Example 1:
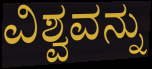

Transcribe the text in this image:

ವಿಶ್ವವನ್ನು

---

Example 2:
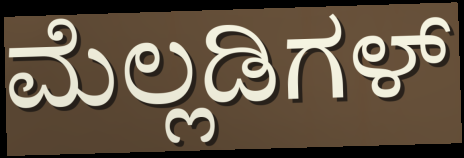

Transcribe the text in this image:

ಮೆಲ್ಲಡಿಗಳ್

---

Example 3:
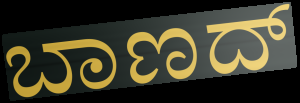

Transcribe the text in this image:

ಬಾಣದ್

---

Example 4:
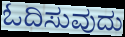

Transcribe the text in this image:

ಓದಿಸುವುದು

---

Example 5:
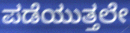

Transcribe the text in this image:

ಪಡೆಯುತ್ತಲೇ